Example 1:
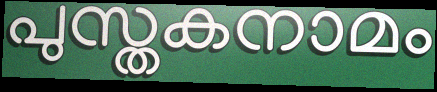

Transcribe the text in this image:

പുസ്തകനാമം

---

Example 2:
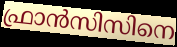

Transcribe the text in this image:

ഫ്രാൻസിസിനെ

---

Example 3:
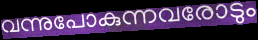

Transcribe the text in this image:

വന്നുപോകുന്നവരോടും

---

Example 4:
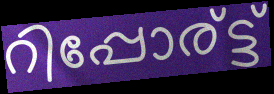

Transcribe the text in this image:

റിപ്പോര്ട്ട്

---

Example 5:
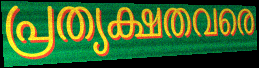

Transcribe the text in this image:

പ്രത്യക്ഷതവരെ